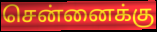
சென்னைக்கு